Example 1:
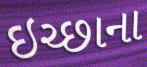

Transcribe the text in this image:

ઇચ્છાના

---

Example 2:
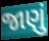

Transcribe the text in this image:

જાણું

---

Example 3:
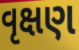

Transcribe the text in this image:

વૃક્ષણ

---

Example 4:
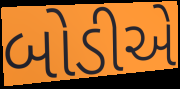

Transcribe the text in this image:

બોડીએ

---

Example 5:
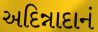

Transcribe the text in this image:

અદિન્નાદાનં